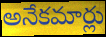
అనేకమార్లు